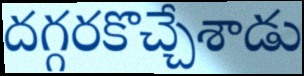
దగ్గరకొచ్చేశాడు